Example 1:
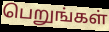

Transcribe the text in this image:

பெறுங்கள்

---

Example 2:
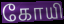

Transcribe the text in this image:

கோயி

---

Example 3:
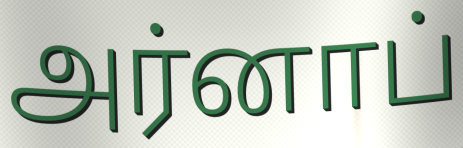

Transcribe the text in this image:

அர்னாப்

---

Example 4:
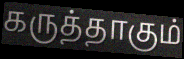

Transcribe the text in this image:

கருத்தாகும்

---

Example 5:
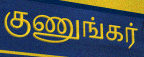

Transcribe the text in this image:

குணுங்கர்